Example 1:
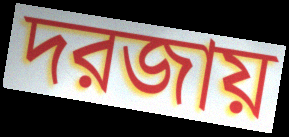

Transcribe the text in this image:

দরজায়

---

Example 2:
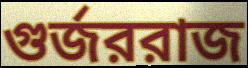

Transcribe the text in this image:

গুর্জররাজ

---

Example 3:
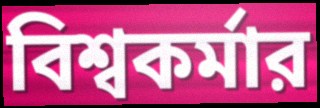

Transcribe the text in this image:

বিশ্বকর্মার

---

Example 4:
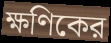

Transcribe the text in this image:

ক্ষণিকের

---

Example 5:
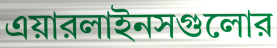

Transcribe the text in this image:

এয়ারলাইনসগুলোর